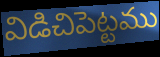
విడిచిపెట్టము